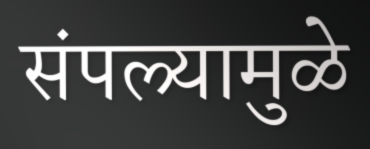
संपल्यामुळे